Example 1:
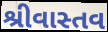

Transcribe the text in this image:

શ્રીવાસ્તવ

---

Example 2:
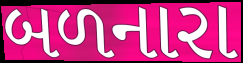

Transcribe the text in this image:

બળનારા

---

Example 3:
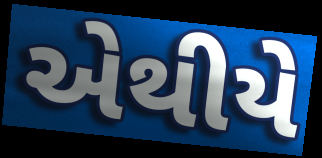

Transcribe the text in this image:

એથીયે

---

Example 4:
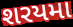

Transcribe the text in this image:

શરયમા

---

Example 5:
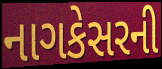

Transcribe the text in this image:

નાગકેસરની